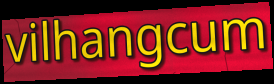
vilhangcum